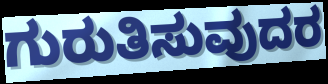
ಗುರುತಿಸುವುದರ